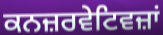
ਕਨਜ਼ਰਵੇਟਿਵਜ਼ਾਂ